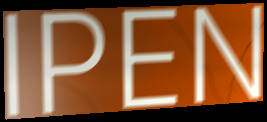
IPEN